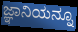
ಜ್ಞಾನಿಯನ್ನೂ